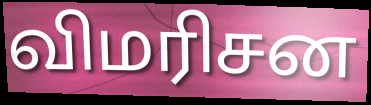
விமரிசன